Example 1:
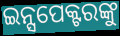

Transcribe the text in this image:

ଇନ୍ସପେକ୍ଟରଙ୍କୁ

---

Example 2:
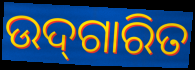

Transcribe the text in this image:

ଉଦ୍‌ଗାରିତ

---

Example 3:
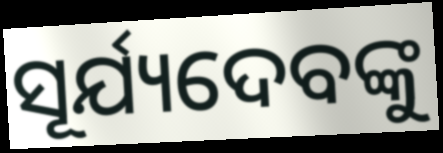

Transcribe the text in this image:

ସୂର୍ଯ୍ୟଦେବଙ୍କୁ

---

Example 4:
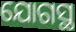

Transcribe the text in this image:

ଯୋଗସ୍ଥ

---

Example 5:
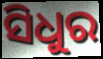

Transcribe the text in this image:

ସିଧୁର